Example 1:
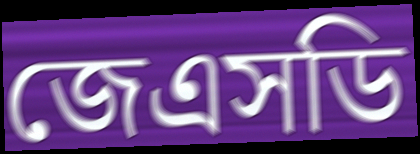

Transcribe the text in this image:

জেএসডি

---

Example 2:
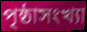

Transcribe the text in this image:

পৃষ্ঠাসংখ্যা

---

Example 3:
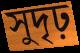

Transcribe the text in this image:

সুদৃঢ়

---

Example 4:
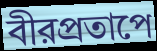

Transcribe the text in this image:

বীরপ্রতাপে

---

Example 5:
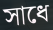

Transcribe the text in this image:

সাধে